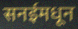
सनईमधून